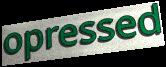
opressed